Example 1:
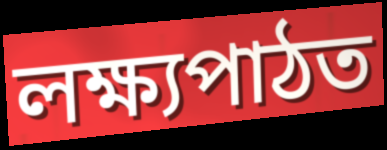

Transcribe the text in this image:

লক্ষ্যপাঠত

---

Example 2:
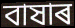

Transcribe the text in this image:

বাষাৰ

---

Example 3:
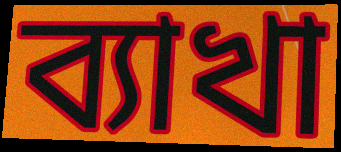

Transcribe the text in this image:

ব্যাখা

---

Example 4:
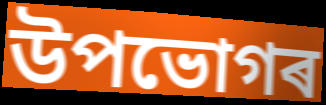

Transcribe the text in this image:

উপভোগৰ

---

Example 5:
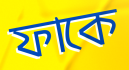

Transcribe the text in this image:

ফাকে